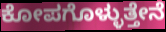
ಕೋಪಗೊಳ್ಳುತ್ತೇನೆ